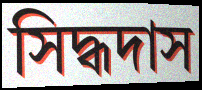
সিদ্ধদাস